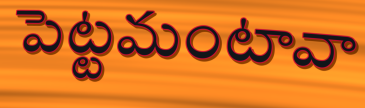
పెట్టమంటావా